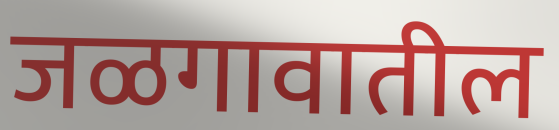
जळगावातील